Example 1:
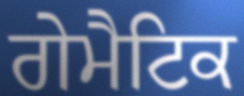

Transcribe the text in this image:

ਗੇਮੈਟਿਕ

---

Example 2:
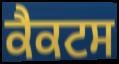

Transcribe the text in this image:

ਕੈਕਟਸ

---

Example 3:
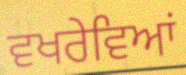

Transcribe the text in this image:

ਵਖਰੇਵਿਆਂ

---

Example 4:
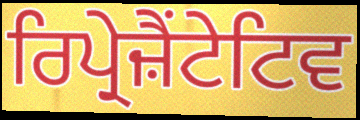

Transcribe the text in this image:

ਰਿਪ੍ਰੇਜ਼ੈਂਟੇਟਿਵ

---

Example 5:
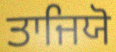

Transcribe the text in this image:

ਤਾਜਿਯੋ